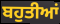
ਬਹੁਤੀਆਂ